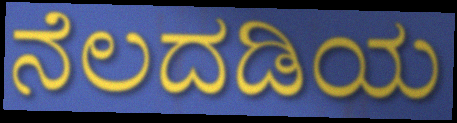
ನೆಲದಡಿಯ